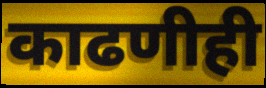
काढणीही